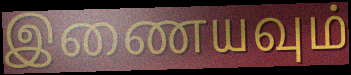
இணையவும்